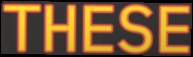
THESE